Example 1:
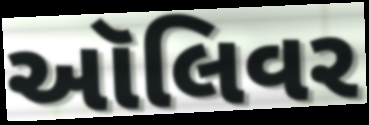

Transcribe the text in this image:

ઑલિવર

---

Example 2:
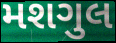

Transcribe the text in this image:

મશગુલ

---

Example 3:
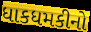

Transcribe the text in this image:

ધાકધમકીનો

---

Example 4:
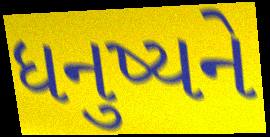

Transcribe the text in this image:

ધનુષ્યને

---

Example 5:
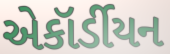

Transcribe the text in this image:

એકૉર્ડીયન